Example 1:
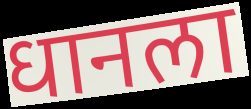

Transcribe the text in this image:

धानला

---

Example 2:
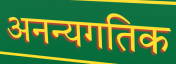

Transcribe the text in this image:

अनन्यगतिक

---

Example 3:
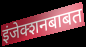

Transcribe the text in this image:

इंजेक्शनबाबत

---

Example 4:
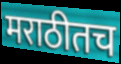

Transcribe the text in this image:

मराठीतच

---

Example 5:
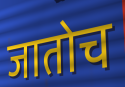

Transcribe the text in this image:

जातोच